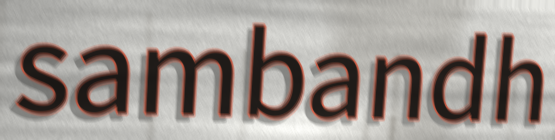
sambandh